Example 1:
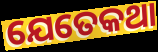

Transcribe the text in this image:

ଯେତେକଥା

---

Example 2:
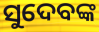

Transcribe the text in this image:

ସୁଦେବଙ୍କ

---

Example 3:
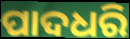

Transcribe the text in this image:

ପାଦଧରି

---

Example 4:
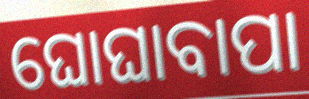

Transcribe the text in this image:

ଘୋଘାବାପା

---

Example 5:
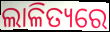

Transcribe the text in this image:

ଲାଳିତ୍ୟରେ